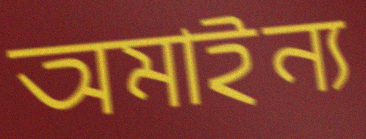
অমাইন্য